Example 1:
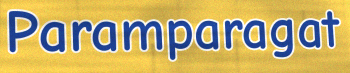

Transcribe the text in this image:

Paramparagat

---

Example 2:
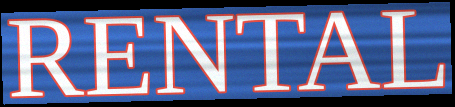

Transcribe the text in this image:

RENTAL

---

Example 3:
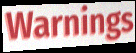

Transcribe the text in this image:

Warnings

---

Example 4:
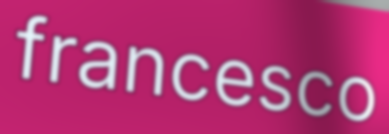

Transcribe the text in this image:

francesco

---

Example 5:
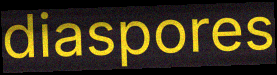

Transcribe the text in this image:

diaspores